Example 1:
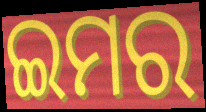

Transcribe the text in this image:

ଇମର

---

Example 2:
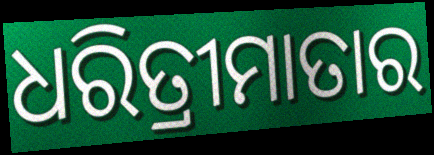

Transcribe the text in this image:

ଧରିତ୍ରୀମାତାର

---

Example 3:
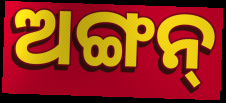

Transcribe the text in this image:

ଅଙ୍ଗନ୍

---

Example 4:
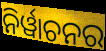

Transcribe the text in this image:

ନିର୍ୱାଚନର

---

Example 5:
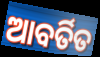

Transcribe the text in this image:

ଆବର୍ତିତ